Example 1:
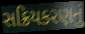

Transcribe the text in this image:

સક્રિયકરણનું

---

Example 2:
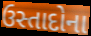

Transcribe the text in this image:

ઉસ્તાદોના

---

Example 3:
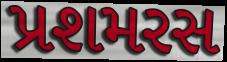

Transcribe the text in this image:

પ્રશમરસ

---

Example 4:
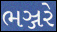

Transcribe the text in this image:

ભઞ્જરે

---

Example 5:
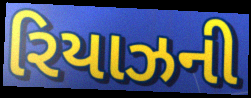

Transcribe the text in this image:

રિયાઝની